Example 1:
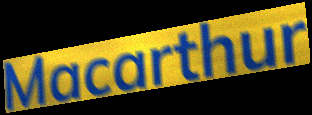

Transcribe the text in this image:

Macarthur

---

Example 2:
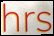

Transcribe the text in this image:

hrs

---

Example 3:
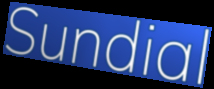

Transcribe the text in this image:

Sundial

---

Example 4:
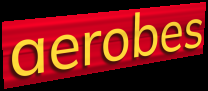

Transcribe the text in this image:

aerobes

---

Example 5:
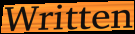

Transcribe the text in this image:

Written